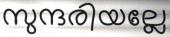
സുന്ദരിയല്ലേ